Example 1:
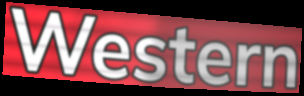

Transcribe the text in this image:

Western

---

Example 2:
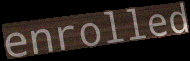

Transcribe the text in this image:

enrolled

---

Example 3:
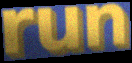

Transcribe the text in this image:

run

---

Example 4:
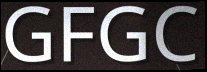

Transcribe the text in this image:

GFGC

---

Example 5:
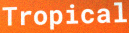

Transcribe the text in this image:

Tropical